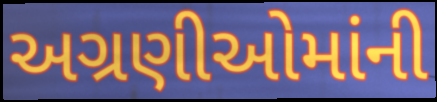
અગ્રણીઓમાંની